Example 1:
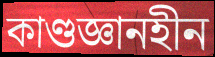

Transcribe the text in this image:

কাণ্ডজ্ঞানহীন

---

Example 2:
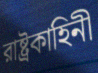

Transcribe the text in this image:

রাষ্ট্রকাহিনী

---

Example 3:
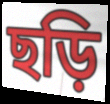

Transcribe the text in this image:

ছড়ি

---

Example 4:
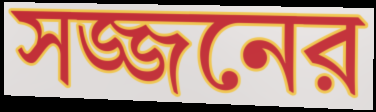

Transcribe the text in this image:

সজ্জনের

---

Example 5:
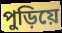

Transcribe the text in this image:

পুড়িয়ে